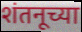
शंतनूच्या